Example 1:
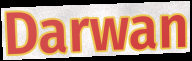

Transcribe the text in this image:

Darwan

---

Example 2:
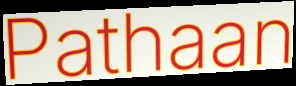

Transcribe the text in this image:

Pathaan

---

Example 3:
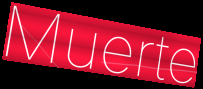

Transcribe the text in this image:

Muerte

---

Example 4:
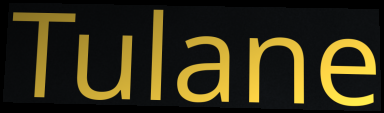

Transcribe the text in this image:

Tulane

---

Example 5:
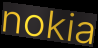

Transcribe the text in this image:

nokia